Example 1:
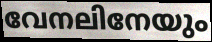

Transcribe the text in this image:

വേനലിനേയും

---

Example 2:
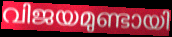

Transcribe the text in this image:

വിജയമുണ്ടായി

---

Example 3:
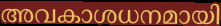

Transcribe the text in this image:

അവകാശധനമായി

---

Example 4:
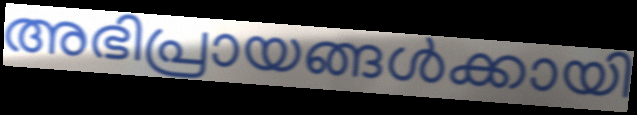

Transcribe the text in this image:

അഭിപ്രായങ്ങൾക്കായി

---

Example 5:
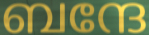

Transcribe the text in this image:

ബന്ദേ